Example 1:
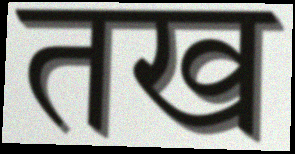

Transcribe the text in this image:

तख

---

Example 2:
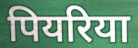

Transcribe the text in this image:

पियरिया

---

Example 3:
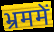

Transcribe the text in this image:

भ्रममें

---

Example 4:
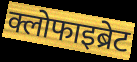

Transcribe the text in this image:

क्लोफाइब्रेट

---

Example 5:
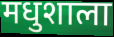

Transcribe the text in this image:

मधुशाला